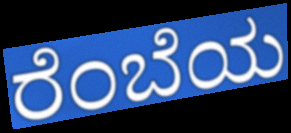
ರೆಂಬೆಯ